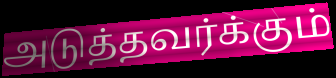
அடுத்தவர்க்கும்